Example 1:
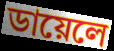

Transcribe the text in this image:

ডায়েলে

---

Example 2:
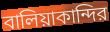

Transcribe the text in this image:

বালিয়াকান্দির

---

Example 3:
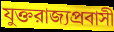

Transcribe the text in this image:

যুক্তরাজ্যপ্রবাসী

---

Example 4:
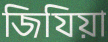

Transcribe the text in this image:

জিযিয়া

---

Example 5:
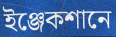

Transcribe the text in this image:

ইঞ্জেকশানে